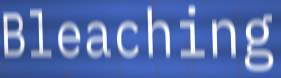
Bleaching